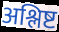
अश्लिष्ट